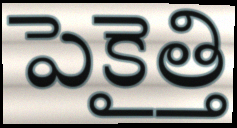
పెకైత్తి